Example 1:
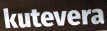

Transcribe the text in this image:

kutevera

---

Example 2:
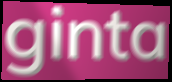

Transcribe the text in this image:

ginta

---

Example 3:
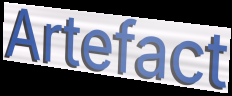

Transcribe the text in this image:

Artefact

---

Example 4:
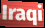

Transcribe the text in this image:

Iraqi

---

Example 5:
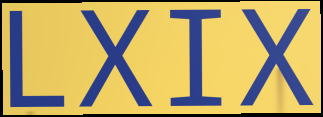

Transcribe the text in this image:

LXIX